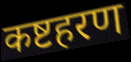
कष्टहरण